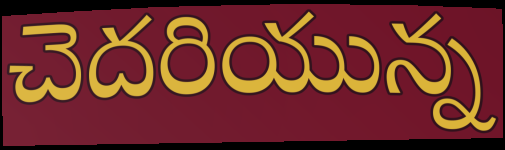
చెదరియున్న